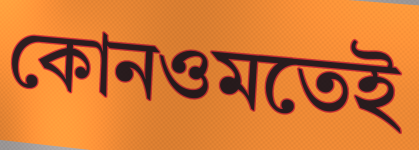
কোনওমতেই